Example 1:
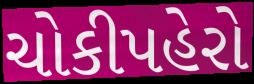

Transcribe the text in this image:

ચોકીપહેરો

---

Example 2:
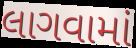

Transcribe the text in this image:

લાગવામાં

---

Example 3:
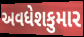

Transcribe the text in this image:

અવધેશકુમાર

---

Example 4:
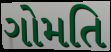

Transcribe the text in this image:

ગોમતિ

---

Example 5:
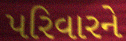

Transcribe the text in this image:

પરિવારને